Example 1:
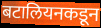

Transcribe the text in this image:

बटालियनकडून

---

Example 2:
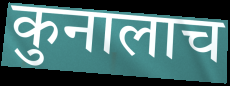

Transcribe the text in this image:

कुनालाच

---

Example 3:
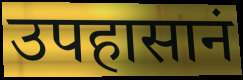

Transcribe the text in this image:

उपहासानं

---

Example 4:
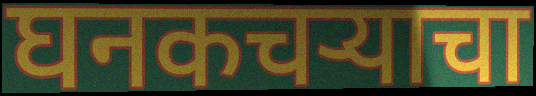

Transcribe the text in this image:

घनकचऱ्याचा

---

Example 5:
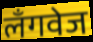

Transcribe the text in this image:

लॅंगवेज